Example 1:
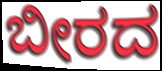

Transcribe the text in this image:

ಬೀರದ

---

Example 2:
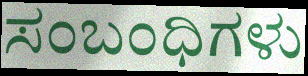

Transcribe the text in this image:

ಸಂಬಂಧಿಗಳು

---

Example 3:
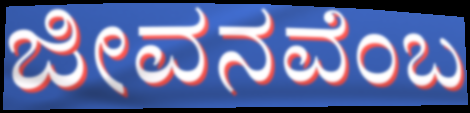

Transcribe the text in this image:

ಜೀವನವೆಂಬ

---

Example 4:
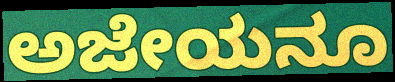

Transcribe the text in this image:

ಅಜೇಯನೂ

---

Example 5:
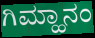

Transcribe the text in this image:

ಗಿಮ್ಹಾನಂ